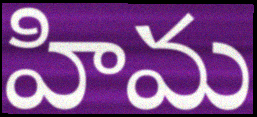
హిమ